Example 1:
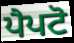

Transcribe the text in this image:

ਪੈਪਟੋ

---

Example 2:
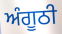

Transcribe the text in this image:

ਅੰਗੂਠੀ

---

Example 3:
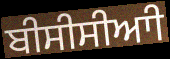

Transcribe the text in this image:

ਬੀਸੀਸੀਆੀ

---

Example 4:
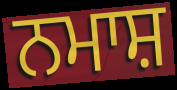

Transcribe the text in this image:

ਨਮਾਸ਼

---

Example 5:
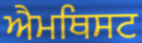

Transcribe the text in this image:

ਐਮਥਿਸਟ